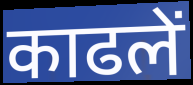
काढलें